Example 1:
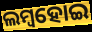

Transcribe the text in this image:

ଲମ୍ୱହୋଇ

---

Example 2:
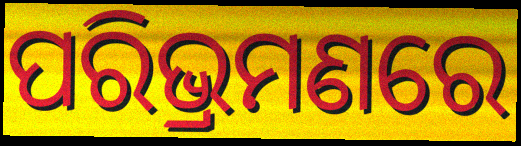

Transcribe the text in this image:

ପରିଭ୍ରମଣରେ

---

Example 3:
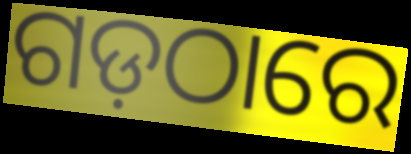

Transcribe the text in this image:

ଗଡ଼ଠାରେ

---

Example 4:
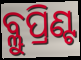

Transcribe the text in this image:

ବ୍ଲୁପ୍ରିଣ୍ଟ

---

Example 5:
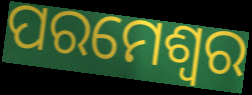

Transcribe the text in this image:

ପରମେଶ୍ୱର